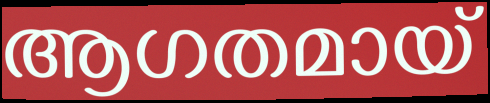
ആഗതമായ്